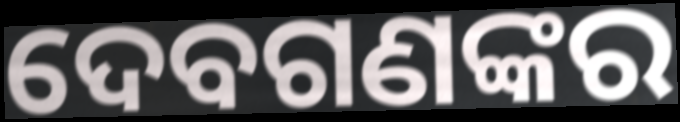
ଦେବଗଣଙ୍କର